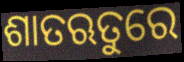
ଶାତଋତୁରେ